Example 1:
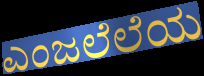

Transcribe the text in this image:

ಎಂಜಲೆಲೆಯ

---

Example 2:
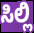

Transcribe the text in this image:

ಸಿಲ್ಲಿ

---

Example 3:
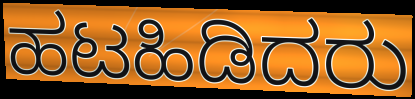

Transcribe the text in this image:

ಹಟಹಿಡಿದರು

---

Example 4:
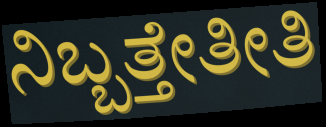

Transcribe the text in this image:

ನಿಬ್ಬತ್ತೇತೀತಿ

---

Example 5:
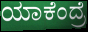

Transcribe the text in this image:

ಯಾಕೆಂದ್ರೆ